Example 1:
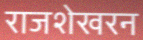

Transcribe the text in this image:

राजशेखरन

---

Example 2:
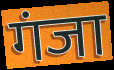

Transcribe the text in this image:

गंजा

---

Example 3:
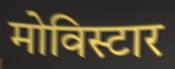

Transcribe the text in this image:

मोविस्टार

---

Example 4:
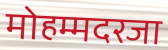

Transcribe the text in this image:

मोहम्मदरजा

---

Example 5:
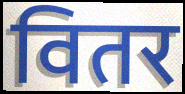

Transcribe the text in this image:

वितर